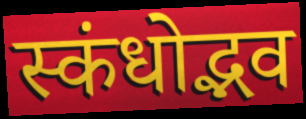
स्कंधोद्भव